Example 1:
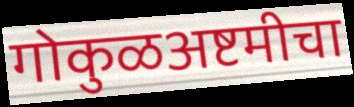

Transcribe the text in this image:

गोकुळअष्टमीचा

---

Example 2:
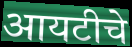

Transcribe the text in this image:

आयटीचे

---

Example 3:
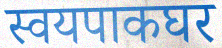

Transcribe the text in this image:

स्वयपाकघर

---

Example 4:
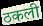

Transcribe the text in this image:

ठकली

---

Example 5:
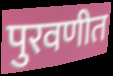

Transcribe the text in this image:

पुरवणीत